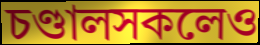
চণ্ডালসকলেও